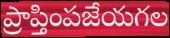
ప్రాప్తింపజేయగల